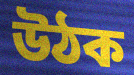
উঠক